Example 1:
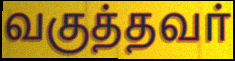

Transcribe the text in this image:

வகுத்தவர்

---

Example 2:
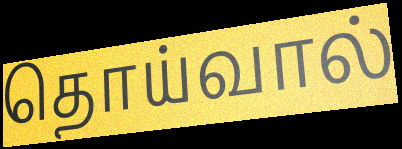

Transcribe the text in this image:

தொய்வால்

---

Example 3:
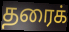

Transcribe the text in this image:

தரைக்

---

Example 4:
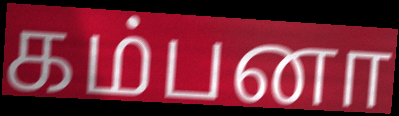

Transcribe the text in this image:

கம்பனா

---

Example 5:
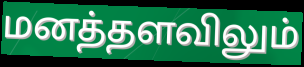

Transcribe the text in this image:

மனத்தளவிலும்